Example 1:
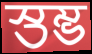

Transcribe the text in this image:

স্তম্ভ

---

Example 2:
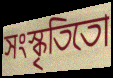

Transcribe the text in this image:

সংস্কৃতিতো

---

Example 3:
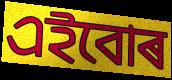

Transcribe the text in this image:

এইবোৰ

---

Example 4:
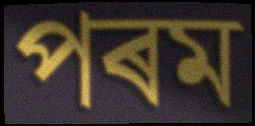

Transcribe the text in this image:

পৰম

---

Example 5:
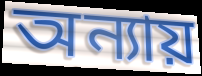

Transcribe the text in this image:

অন্যায়